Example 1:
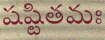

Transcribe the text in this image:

షష్టితమః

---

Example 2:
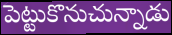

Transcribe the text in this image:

పెట్టుకొనుచున్నాడు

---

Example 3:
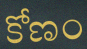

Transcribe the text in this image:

కోణం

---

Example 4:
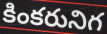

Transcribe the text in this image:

కింకరునిగ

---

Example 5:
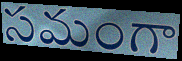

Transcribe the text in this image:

సమంగా